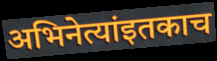
अभिनेत्यांइतकाच